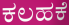
ಕಲಹಕೆ